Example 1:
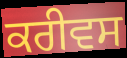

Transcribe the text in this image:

ਕਰੀਵਸ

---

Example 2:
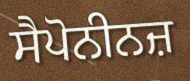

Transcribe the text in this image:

ਸੈਪੋਨੀਨਜ਼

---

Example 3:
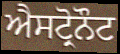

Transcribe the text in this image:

ਐਸਟ੍ਰੋਨੌਟ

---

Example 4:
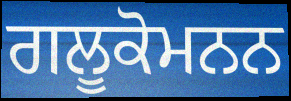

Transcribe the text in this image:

ਗਲੂਕੋਮਨਨ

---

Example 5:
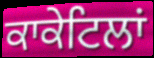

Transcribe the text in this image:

ਕਾਕੇਟਿਲਾਂ